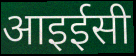
आइईसी